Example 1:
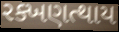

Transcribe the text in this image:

રક્ખણત્થાય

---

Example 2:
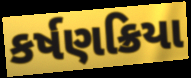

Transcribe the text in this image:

કર્ષણક્રિયા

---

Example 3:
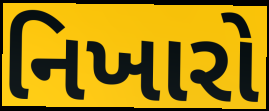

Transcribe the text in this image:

નિખારો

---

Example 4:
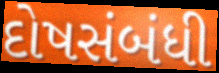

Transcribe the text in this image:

દોષસંબંધી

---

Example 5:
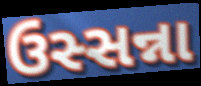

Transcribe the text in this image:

ઉસ્સન્ના